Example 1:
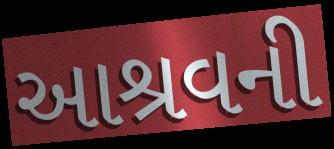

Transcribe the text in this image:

આશ્રવની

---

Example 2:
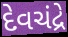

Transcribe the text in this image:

દેવચંદ્રે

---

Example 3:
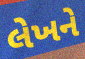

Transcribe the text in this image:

લેખને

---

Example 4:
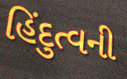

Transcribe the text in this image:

હિંદુત્વની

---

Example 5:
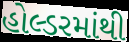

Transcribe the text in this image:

હોલ્ડરમાંથી